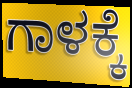
ಗಾಳಕ್ಕೆ